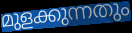
മുളക്കുന്നതും